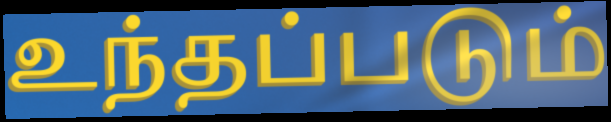
உந்தப்படும்